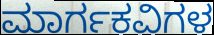
ಮಾರ್ಗಕವಿಗಳ